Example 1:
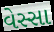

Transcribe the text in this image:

વેસ્સા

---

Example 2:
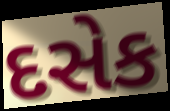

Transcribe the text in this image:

દસેક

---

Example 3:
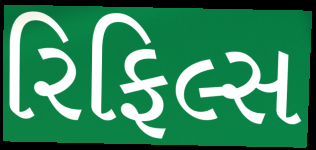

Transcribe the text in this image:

રિફિલ્સ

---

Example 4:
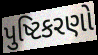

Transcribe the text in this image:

પુષ્ટિકરણો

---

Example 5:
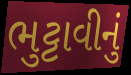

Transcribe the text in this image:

ભુટ્ટાવીનું